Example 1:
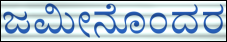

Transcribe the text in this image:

ಜಮೀನೊಂದರ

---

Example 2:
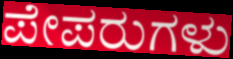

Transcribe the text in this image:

ಪೇಪರುಗಳು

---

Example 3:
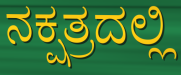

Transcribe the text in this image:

ನಕ್ಷತ್ರದಲ್ಲಿ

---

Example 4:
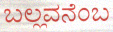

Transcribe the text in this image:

ಬಲ್ಲವನೆಂಬ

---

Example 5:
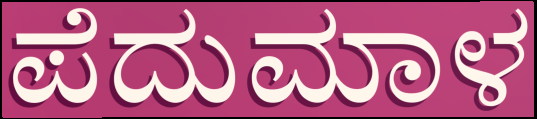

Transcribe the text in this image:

ಪೆದುಮಾಳ